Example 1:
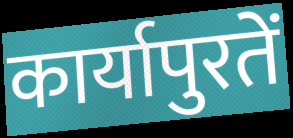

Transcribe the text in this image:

कार्यापुरतें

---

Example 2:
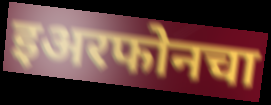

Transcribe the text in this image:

इअरफोनचा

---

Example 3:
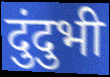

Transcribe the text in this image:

दुंदुभी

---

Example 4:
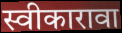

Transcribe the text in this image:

स्वीकारावा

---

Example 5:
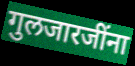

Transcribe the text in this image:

गुलजारजींना